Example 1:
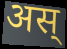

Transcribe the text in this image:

अस्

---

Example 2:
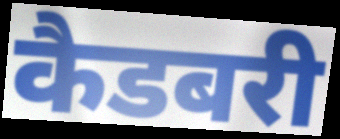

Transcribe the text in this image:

कैडबरी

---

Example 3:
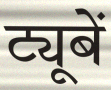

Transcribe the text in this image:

ट्यूबें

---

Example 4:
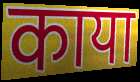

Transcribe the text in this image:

काया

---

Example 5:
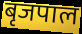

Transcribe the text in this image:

बृजपाल